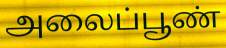
அலைப்பூண்